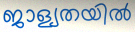
ജാള്യതയിൽ